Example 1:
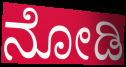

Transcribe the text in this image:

ನೋಡಿ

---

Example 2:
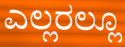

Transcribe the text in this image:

ಎಲ್ಲರಲ್ಲೂ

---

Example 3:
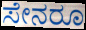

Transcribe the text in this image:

ಸೇನರೂ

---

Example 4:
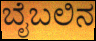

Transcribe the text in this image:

ಬೈಬಲಿನ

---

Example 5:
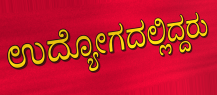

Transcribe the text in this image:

ಉದ್ಯೋಗದಲ್ಲಿದ್ದರು